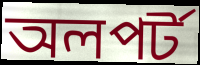
অলপর্ট